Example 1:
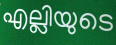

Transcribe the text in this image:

എല്ലിയുടെ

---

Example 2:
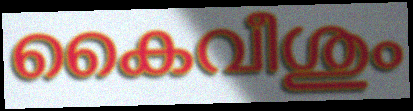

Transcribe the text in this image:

കൈവീശും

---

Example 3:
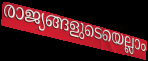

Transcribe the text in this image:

രാജ്യങ്ങളുടെയെല്ലാം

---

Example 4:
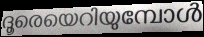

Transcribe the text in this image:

ദൂരെയെറിയുമ്പോൾ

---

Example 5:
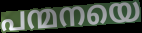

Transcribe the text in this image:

പന്മനയെ